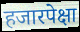
हजारपेक्षा